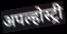
अपल्होस्ट्री